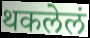
थकलेलं